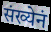
संख्येनं